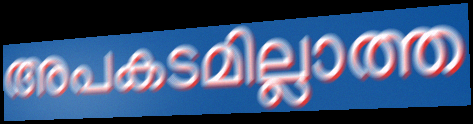
അപകടമില്ലാത്ത